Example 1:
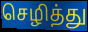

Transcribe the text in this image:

செழித்து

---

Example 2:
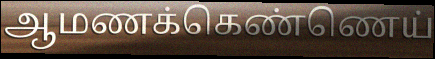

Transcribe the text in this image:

ஆமணக்கெண்ணெய்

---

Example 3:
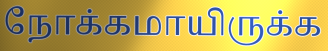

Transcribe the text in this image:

நோக்கமாயிருக்க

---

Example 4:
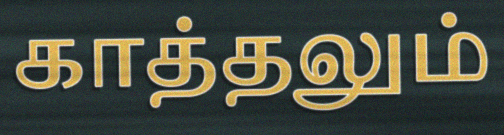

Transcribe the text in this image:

காத்தலும்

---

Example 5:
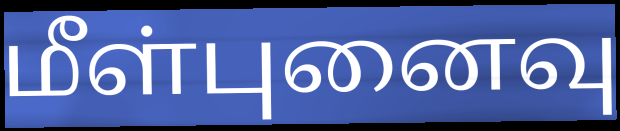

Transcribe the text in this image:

மீள்புனைவு